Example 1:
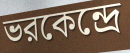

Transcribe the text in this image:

ভরকেন্দ্রে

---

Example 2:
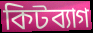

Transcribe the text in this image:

কিটব্যাগ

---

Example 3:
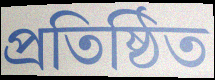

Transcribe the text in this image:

প্রতিষ্ঠিত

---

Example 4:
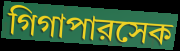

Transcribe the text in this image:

গিগাপারসেক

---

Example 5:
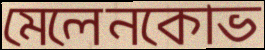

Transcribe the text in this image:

মেলেনকোভ